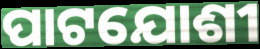
ପାଟଯୋଶୀ